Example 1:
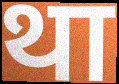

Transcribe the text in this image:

था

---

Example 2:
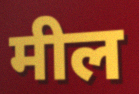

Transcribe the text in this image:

मील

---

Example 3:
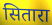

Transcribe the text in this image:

सितारा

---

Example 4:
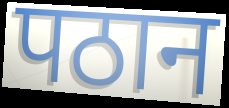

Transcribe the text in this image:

पठान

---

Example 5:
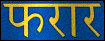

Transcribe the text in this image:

फरार